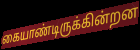
கையாண்டிருக்கின்றன